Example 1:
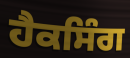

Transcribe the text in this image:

ਹੈਕਸਿੰਗ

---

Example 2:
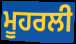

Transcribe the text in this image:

ਮੂਹਰਲੀ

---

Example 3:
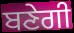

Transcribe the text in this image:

ਬਣੇਗੀ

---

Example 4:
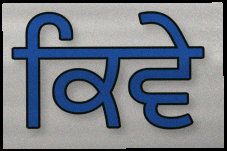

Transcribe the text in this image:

ਕਿਵੇ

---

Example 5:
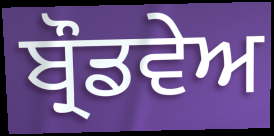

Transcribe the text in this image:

ਬ੍ਰੌਡਵੇਅ